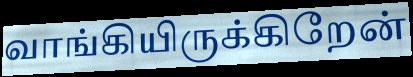
வாங்கியிருக்கிறேன்